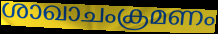
ശാഖാചംക്രമണം